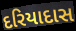
દરિયાદાસ